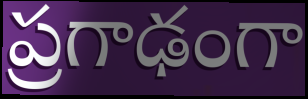
ప్రగాఢంగా